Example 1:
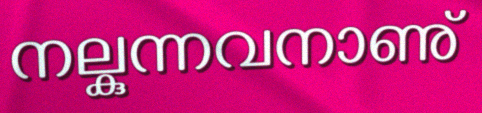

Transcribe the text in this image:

നല്കുന്നവനാണു്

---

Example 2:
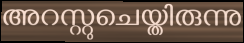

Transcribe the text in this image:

അറസ്റ്റുചെയ്തിരുന്നു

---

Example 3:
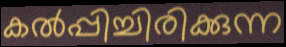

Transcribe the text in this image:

കൽപ്പിച്ചിരിക്കുന്ന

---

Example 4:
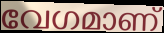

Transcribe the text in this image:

വേഗമാണ്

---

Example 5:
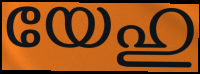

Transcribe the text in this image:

യേഹു